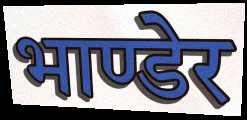
भाण्‍डेर